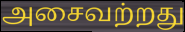
அசைவற்றது